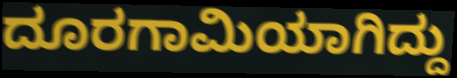
ದೂರಗಾಮಿಯಾಗಿದ್ದು